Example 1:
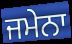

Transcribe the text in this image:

ਜਮੇਨਾ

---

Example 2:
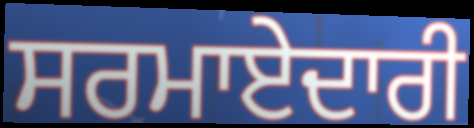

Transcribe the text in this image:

ਸਰਮਾਏਦਾਰੀ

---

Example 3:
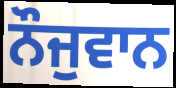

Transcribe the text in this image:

ਨੌਜੁਵਾਨ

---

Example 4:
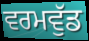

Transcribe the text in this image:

ਵਰਮਵੁੱਡ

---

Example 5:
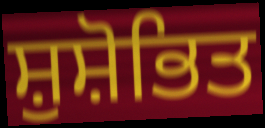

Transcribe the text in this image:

ਸ਼ੁਸ਼ੋਭਿਤ